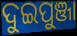
ଦୁଇପୁଞ୍ଜା